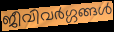
ജീവിവർഗ്ഗങ്ങൾ